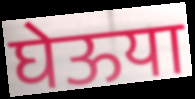
घेऊया